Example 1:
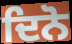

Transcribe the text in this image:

ਦਿਨੋ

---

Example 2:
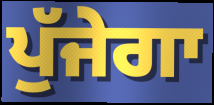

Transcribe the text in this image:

ਪੁੱਜੇਗਾ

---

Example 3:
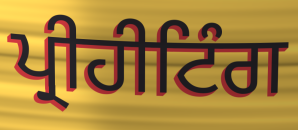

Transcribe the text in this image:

ਪ੍ਰੀਹੀਟਿੰਗ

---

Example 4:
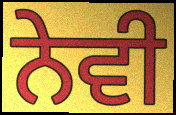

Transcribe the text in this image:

ਨੇਵੀ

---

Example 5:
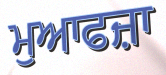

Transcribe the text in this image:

ਮੁਆਫਜ਼ਾ